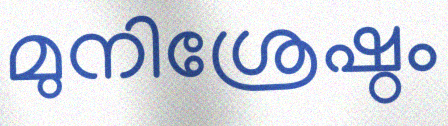
മുനിശ്രേഷ്ഠം